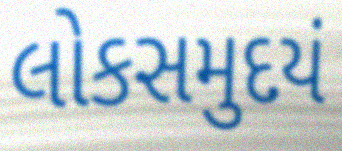
લોકસમુદયં